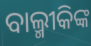
ବାଲ୍ମୀକିଙ୍କ